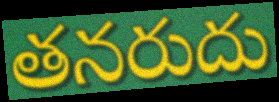
తనరుదు